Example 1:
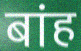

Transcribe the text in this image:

बांह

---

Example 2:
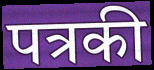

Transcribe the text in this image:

पत्रकी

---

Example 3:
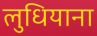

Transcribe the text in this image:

लुधियाना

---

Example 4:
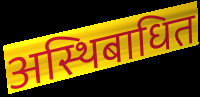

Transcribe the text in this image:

अस्थिबाधित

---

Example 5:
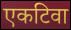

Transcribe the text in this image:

एकटिवा